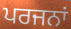
ਪਰਜਨਾਂ